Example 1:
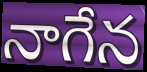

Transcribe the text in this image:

నాగేన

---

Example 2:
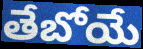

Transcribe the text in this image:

తేబోయే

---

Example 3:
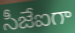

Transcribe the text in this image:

సీజేఐగా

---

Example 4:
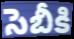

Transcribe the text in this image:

సెబీకి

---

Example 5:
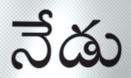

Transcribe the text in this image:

నేడు